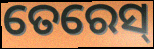
ତେରେସ୍